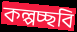
কল্পচ্ছবি